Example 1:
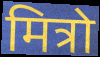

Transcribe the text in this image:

मित्रो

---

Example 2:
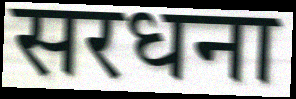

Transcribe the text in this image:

सरधना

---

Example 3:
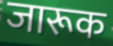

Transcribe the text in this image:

जारूक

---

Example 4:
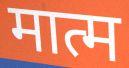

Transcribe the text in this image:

मात्म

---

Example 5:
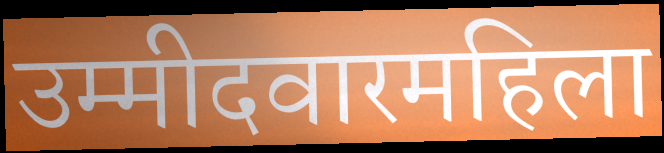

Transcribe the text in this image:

उम्मीदवारमहिला